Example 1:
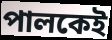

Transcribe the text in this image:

পালকেই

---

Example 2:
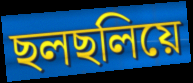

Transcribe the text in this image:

ছলছলিয়ে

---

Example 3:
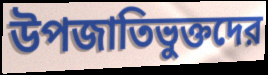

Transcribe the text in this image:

উপজাতিভুক্তদের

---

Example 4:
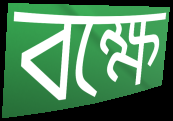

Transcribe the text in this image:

বক্ষে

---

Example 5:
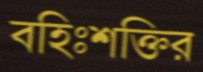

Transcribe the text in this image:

বহিঃশক্তির